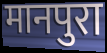
मानपुरा